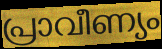
പ്രാവീണ്യം